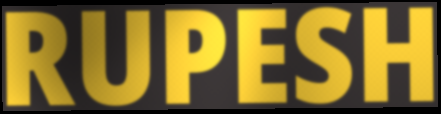
RUPESH